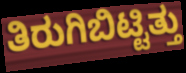
ತಿರುಗಿಬಿಟ್ಟಿತ್ತು